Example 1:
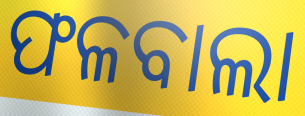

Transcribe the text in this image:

ଫଳବାଲା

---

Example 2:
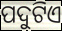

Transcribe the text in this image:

ପଦୁଟିଏ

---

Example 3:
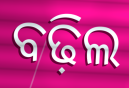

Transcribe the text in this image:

ବଢ଼ିଲ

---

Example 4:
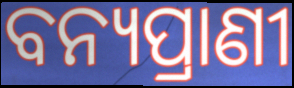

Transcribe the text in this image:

ବନ୍ୟପ୍ରାଣୀ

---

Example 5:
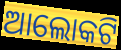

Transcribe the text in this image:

ଆଲୋକଟି